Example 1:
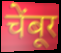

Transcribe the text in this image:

चेंबूर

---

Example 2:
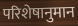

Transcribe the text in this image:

परिशेषानुमान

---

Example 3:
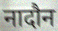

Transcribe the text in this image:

नादौन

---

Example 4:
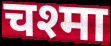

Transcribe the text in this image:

चश्मा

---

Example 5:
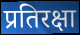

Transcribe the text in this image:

प्रतिरक्षा